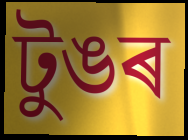
টুঙৰ